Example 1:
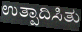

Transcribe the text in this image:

ಉತ್ಪಾದಿಸಿತು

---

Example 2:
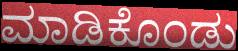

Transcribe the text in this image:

ಮಾಡಿಕೊಂಡು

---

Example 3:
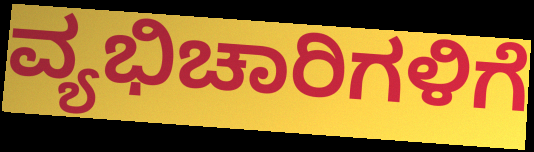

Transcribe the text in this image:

ವ್ಯಭಿಚಾರಿಗಳಿಗೆ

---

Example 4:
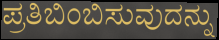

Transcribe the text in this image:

ಪ್ರತಿಬಿಂಬಿಸುವುದನ್ನು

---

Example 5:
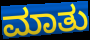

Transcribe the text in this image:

ಮಾತು